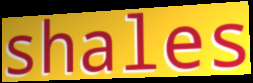
shales